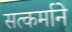
सत्कर्माने